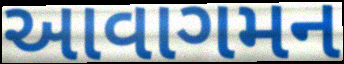
આવાગમન